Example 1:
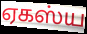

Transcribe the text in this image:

ஏகஸ்ய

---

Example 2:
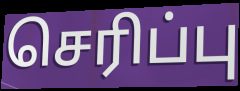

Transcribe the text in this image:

செரிப்பு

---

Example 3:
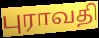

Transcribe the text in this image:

புராவதி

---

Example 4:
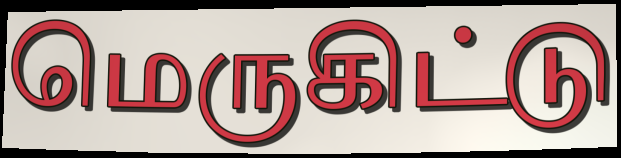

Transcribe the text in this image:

மெருகிட்டு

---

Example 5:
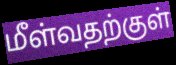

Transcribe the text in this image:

மீள்வதற்குள்